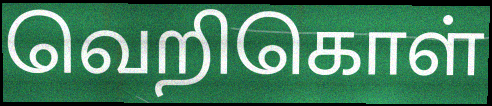
வெறிகொள்